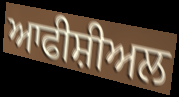
ਆਫੀਸ਼ੀਅਲ